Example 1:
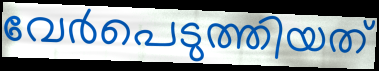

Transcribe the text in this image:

വേർപെടുത്തിയത്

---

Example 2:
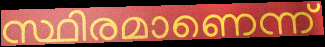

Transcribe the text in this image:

സ്ഥിരമാണെന്ന്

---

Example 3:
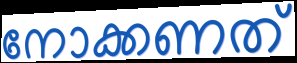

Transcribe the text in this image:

നോക്കണത്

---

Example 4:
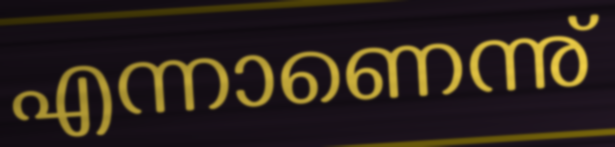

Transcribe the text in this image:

എന്നാണെന്നു്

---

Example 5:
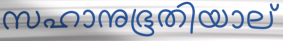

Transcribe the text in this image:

സഹാനുഭൂതിയാല്